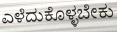
ಎಳೆದುಕೊಳ್ಳಬೇಕು